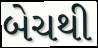
બેચથી